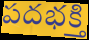
పదభక్తి